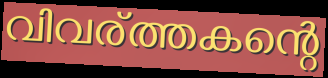
വിവര്ത്തകന്റെ